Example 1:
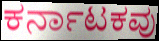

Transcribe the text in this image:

ಕರ್ನಾಟಕವು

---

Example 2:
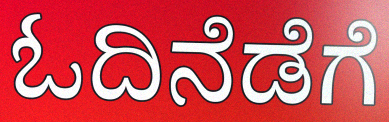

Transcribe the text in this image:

ಓದಿನೆಡೆಗೆ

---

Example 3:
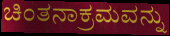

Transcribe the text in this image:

ಚಿಂತನಾಕ್ರಮವನ್ನು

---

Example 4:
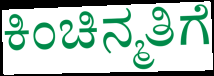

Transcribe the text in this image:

ಕಿಂಚಿನ್ಮತಿಗೆ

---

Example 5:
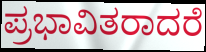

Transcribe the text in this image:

ಪ್ರಭಾವಿತರಾದರೆ